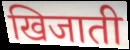
खिजाती